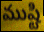
ముష్టి